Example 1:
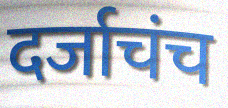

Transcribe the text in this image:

दर्जाचंच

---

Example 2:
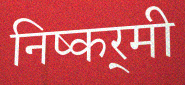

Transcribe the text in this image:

निष्कर्मी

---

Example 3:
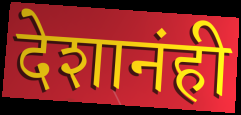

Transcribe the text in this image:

देशानंही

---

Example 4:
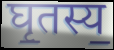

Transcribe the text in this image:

घृ॒तस्य॒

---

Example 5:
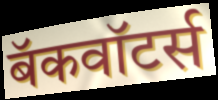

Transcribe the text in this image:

बॅकवॉटर्स